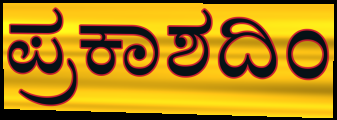
ಪ್ರಕಾಶದಿಂ